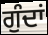
ਗੁੰਦਾਂ